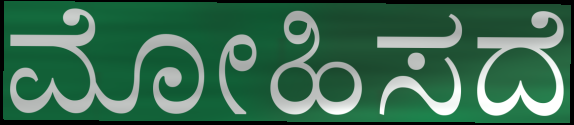
ಮೋಹಿಸದೆ